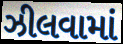
ઝીલવામાં